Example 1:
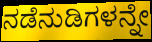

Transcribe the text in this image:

ನಡೆನುಡಿಗಳನ್ನೇ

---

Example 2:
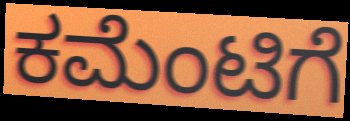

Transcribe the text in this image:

ಕಮೆಂಟಿಗೆ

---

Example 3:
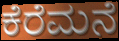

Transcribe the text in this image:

ಕೆರೆಮನೆ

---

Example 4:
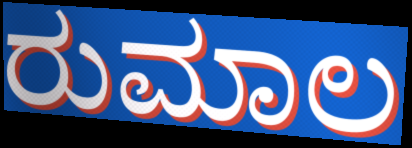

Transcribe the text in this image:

ರುಮಾಲ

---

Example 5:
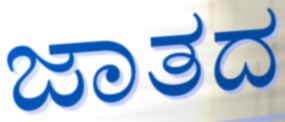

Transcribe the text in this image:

ಜಾತದ